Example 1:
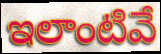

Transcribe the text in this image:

ఇలాంటివే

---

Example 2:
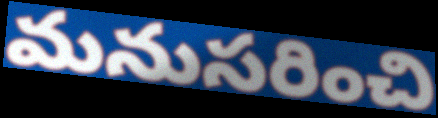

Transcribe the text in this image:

మనుసరించి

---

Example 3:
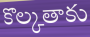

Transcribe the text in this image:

కొల్కతాకు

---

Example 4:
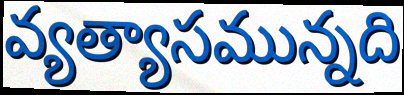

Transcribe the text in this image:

వ్యత్యాసమున్నది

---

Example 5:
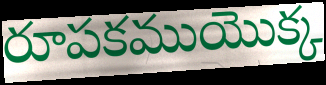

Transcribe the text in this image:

రూపకముయొక్క